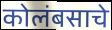
कोलंबसाचे